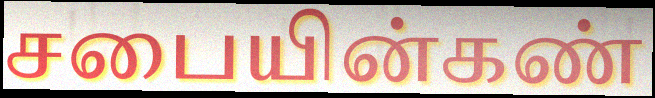
சபையின்கண்